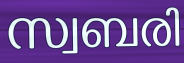
സ്വബരി